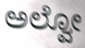
ಅಲ್ವೋ